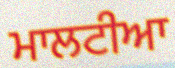
ਮਾਲਟੀਆ